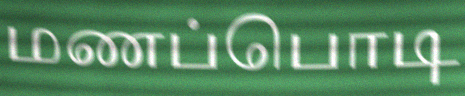
மணப்பொடி